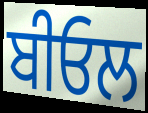
ਬੀਓਲ